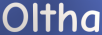
Oltha